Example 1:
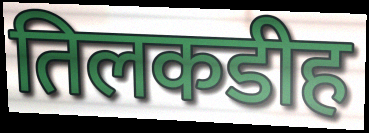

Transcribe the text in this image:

तिलकडीह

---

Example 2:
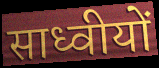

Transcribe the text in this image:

साध्वीयों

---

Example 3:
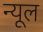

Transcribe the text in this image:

न्यूल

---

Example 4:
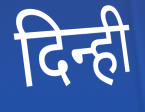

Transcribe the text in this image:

दिन्ही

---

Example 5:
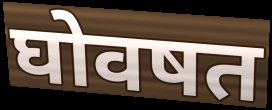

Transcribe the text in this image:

घोवषत